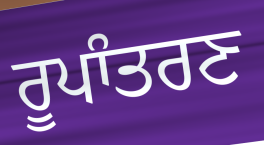
ਰੂਪਾੰਤਰਣ